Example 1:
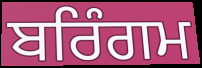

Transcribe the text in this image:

ਬਰਿੰਗਮ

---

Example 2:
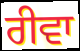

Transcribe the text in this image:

ਰੀਵਾ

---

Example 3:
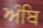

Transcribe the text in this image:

ਅੰਬਿ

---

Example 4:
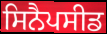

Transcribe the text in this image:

ਸਿਨੈਪਸੀਡ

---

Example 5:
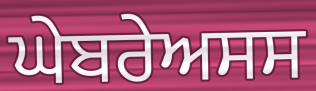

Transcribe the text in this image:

ਘੇਬਰੇਅਸਸ